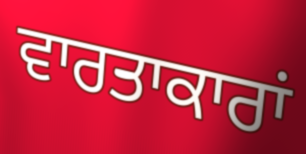
ਵਾਰਤਾਕਾਰਾਂ